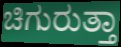
ಚಿಗುರುತ್ತಾ